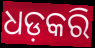
ଧଡ଼କରି